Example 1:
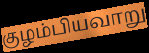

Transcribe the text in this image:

குழம்பியவாறு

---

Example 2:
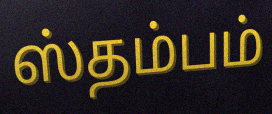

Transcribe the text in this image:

ஸ்தம்பம்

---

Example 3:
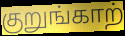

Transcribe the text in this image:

குறுங்காற்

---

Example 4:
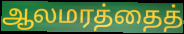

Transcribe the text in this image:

ஆலமரத்தைத்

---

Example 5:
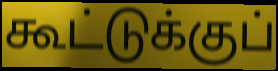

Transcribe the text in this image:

கூட்டுக்குப்